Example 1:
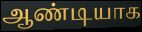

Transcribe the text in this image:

ஆண்டியாக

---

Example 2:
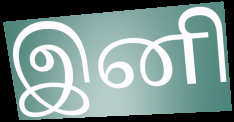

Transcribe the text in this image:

இனி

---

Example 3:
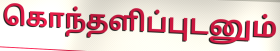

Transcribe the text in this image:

கொந்தளிப்புடனும்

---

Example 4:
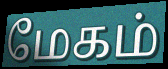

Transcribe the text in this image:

மேகம்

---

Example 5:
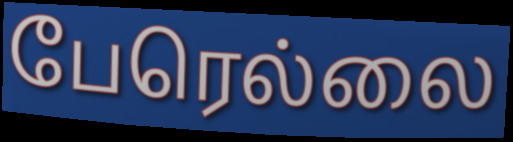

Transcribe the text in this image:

பேரெல்லை